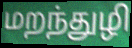
மறந்துழி